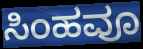
ಸಿಂಹವೂ